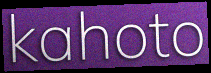
kahoto